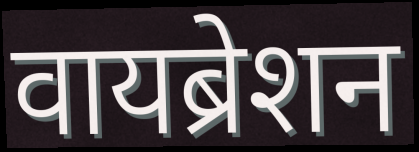
वायब्रेशन